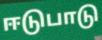
ஈடுபாடு